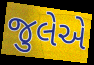
જુલેએ